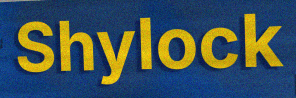
Shylock